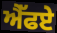
ਐੱਫਏ